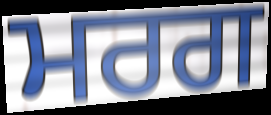
ਮਰਗ